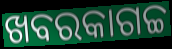
ଖବରକାଗଚ୍ଚ